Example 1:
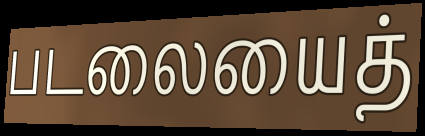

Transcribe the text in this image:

படலையைத்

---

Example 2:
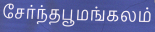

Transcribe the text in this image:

சேர்ந்தபூமங்கலம்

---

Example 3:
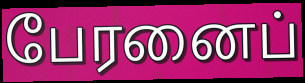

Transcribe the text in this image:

பேரனைப்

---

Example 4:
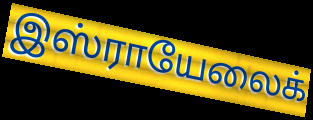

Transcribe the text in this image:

இஸ்ராயேலைக்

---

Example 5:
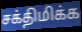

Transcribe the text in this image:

சக்திமிக்க